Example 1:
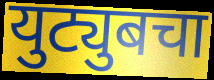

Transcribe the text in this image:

युट्युबचा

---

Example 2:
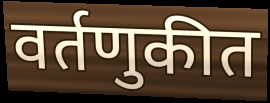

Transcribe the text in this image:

वर्तणुकीत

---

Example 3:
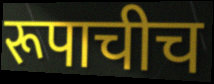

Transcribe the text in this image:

रूपाचीच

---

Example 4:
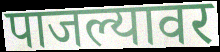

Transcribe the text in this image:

पाजल्यावर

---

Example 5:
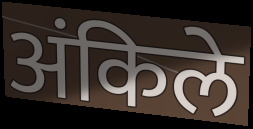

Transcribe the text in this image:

अंकिले